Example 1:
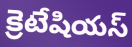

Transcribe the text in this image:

క్రెటేషియస్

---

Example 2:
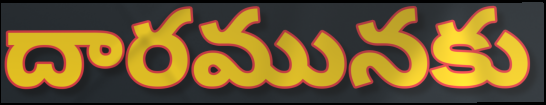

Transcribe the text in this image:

దారమునకు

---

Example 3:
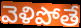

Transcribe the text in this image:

వెళిపోతే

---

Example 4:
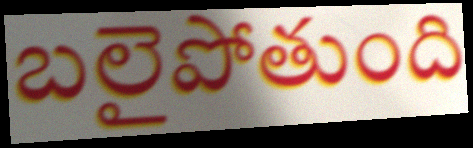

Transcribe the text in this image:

బలైపోతుంది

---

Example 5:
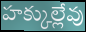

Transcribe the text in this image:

హక్కుల్లేవు